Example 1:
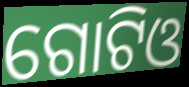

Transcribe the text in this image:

ଗୋଟିଓ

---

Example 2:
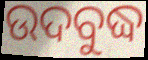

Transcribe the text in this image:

ଉଦବୁଦ୍ଧ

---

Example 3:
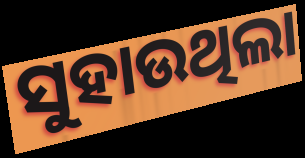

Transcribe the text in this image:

ସୁହାଉଥିଲା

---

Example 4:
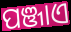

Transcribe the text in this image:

ପଞ୍ଜାଏ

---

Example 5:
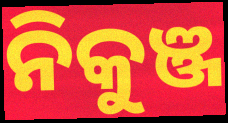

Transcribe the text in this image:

ନିକୁଞ୍ଜ